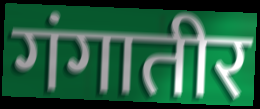
गंगातीर